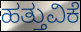
ಹತ್ತುವಿಕೆ